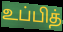
உப்பித்